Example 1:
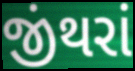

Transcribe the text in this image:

જીંથરાં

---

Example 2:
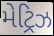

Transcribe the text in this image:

મેટ્રિઝ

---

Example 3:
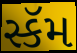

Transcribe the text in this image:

સ્કૅમ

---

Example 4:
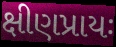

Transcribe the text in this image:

ક્ષીણપ્રાયઃ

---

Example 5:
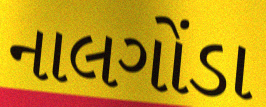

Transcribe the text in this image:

નાલગોંડા